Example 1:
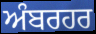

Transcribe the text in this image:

ਅੰਬਰਹਰ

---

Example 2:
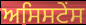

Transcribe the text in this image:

ਅਸਿਸਟੇਂਸ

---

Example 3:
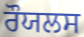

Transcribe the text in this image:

ਰੌਯਲਸ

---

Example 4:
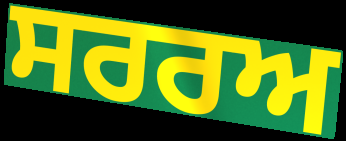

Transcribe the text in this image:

ਸਰਰਅ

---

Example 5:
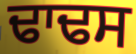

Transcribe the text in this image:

ਢਾਢਸ